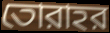
তোরাহর